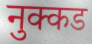
नुक्कड